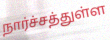
நார்ச்சத்துள்ள